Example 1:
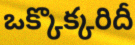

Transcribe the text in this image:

ఒక్కొక్కరిదీ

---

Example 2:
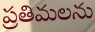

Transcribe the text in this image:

ప్రతిమలను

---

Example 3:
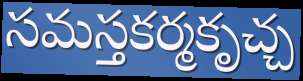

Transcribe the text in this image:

సమస్తకర్మకృచ్చ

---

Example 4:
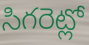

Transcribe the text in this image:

సిగరెట్లో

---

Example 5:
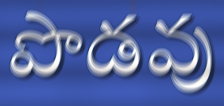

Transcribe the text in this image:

పొడవు